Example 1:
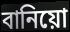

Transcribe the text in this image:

বানিয়ো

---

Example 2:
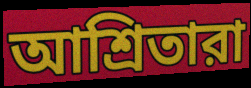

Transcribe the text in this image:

আশ্রিতারা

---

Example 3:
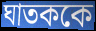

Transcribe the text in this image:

ঘাতককে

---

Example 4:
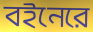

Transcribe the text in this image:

বইনেরে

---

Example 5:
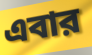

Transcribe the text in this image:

এবার